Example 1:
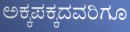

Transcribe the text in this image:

ಅಕ್ಕಪಕ್ಕದವರಿಗೂ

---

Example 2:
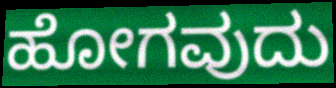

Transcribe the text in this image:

ಹೋಗವುದು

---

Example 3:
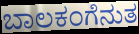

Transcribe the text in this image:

ಬಾಲಕಂಗೆನುತ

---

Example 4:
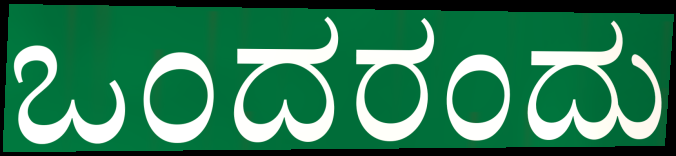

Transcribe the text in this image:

ಒಂದರಂದು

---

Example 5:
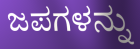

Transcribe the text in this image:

ಜಪಗಳನ್ನು